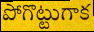
పోగొట్టుగాక